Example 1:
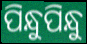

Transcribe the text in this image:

ପିନ୍ଧୁପିନ୍ଧୁ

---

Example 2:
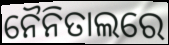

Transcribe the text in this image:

ନୈନିତାଲରେ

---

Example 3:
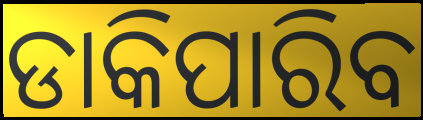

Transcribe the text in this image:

ଡାକିପାରିବ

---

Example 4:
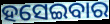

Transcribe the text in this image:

ହସେଇବାର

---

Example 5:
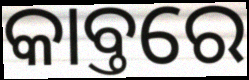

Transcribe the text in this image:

କାବ୍ତରେ